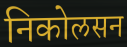
निकोलसन